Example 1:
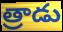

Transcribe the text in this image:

త్రాడు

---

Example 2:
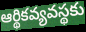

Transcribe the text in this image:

ఆర్థికవ్యవస్థకు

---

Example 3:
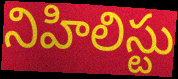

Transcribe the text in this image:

నిహిలిస్టు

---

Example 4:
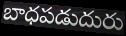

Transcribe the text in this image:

బాధపడుదురు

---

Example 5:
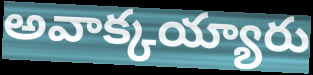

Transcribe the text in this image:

అవాక్కయ్యారు